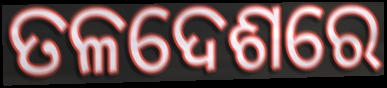
ତଳଦେଶରେ